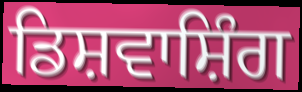
ਡਿਸ਼ਵਾਸ਼ਿੰਗ